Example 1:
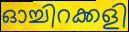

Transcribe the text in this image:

ഓച്ചിറക്കളി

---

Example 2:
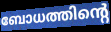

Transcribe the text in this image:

ബോധത്തിന്റെ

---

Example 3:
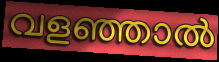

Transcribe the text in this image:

വളഞ്ഞാൽ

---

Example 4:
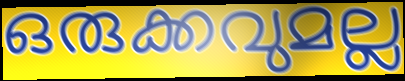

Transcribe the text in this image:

ഒരുക്കവുമല്ല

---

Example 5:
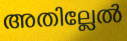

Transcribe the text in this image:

അതില്ലേൽ